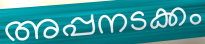
അപ്പനടക്കം